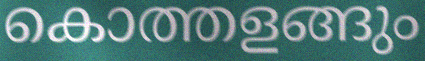
കൊത്തളങ്ങും